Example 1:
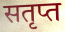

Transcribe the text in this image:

सतृप्त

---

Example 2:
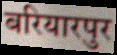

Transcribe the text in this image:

बरियारपुर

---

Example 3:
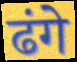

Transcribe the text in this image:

ढंगे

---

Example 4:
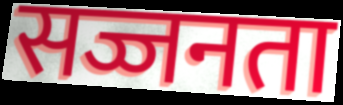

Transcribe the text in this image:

सज्जनता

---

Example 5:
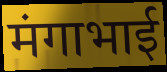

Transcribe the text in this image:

मंगाभाई